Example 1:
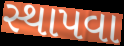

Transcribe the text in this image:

સ્થાપવા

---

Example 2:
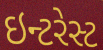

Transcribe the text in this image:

ઇન્ટરેસ્ટ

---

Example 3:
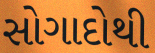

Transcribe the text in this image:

સોગાદોથી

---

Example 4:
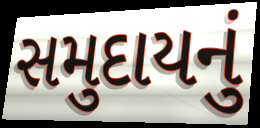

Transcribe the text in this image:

સમુદાયનું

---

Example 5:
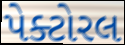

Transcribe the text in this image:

પેક્ટોરલ